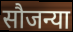
सौजन्या